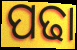
ପଢା